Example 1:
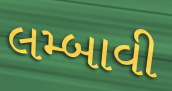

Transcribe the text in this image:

લમ્બાવી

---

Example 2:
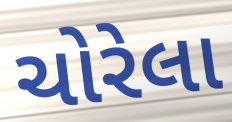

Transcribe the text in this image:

ચોરેલા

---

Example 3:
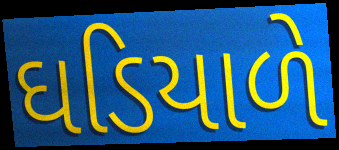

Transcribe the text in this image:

ઘડિયાળે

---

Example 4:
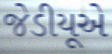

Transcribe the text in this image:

જેડીયૂએ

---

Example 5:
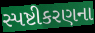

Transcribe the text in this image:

સ્પષ્ટીકરણના